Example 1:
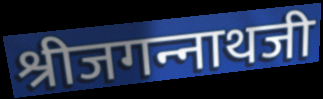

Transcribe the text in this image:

श्रीजगन्नाथजी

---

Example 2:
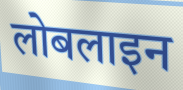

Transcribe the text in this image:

लोबलाइन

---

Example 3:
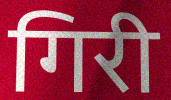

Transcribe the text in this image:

गिरी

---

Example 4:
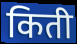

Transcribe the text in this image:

किती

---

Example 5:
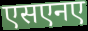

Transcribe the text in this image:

एसएनए